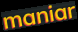
maniar